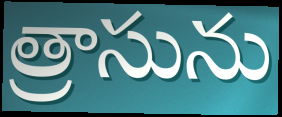
త్రాసును